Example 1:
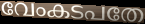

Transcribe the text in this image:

വേംകടപതേ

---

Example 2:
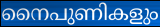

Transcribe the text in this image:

നൈപുണികളും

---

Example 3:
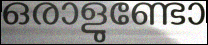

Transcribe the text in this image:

ഒരാളുണ്ടോ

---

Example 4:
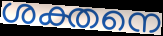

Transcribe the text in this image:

ശക്തനെ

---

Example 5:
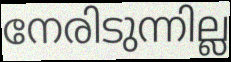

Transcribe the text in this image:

നേരിടുന്നില്ല